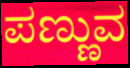
ಪಣ್ಣುವ